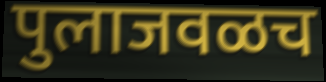
पुलाजवळच